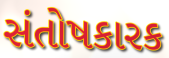
સંતોષકારક